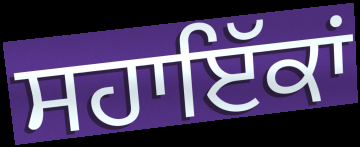
ਸਹਾਇੱਕਾਂ